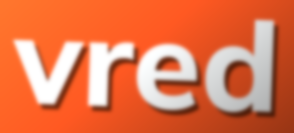
vred